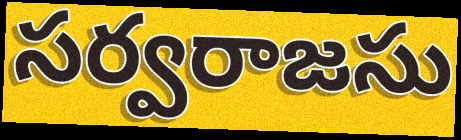
సర్వరాజసు